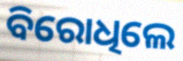
ବିରୋଧିଲେ